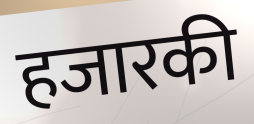
हजारकी